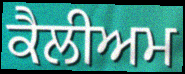
ਕੈਲੀਅਮ